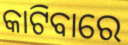
କାଟିବାରେ